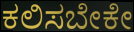
ಕಲಿಸಬೇಕೇ